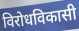
विरोधविकासी